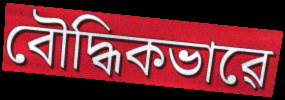
বৌদ্ধিকভাৱে